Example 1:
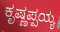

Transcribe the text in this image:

ಕೃಷ್ಣಪ್ಪಯ್ಯ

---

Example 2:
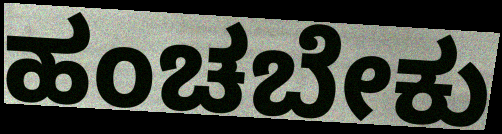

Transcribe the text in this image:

ಹಂಚಬೇಕು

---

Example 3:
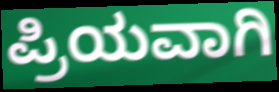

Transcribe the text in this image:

ಪ್ರಿಯವಾಗಿ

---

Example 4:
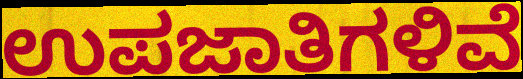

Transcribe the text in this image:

ಉಪಜಾತಿಗಳಿವೆ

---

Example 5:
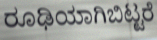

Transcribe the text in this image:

ರೂಢಿಯಾಗಿಬಿಟ್ಟರೆ